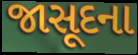
જાસૂદના